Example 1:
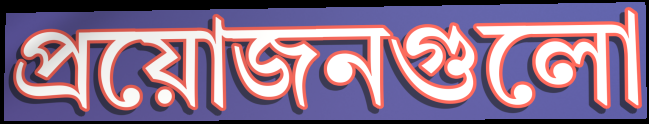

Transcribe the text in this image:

প্রয়োজনগুলো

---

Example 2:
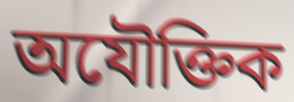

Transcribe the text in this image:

অযৌক্তিক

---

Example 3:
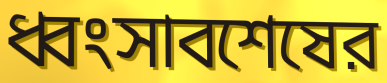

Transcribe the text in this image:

ধ্বংসাবশেষের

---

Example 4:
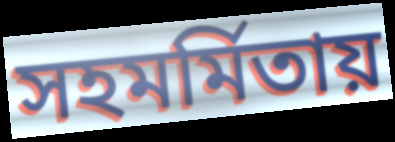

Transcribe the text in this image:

সহমর্মিতায়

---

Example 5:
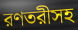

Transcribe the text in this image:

রণতরীসহ